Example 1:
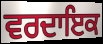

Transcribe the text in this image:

ਵਰਦਾਇਕ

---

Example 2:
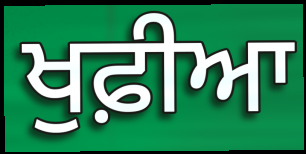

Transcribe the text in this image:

ਖੁਫ਼ੀਆ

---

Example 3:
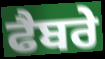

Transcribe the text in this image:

ਫੈਬਰੇ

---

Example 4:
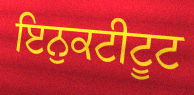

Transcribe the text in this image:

ਇਨੁਕਟੀਟੂਟ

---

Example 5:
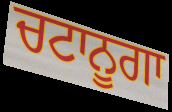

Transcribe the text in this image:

ਚਟਾਨੂਗਾ